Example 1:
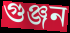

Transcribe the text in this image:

গুঞ্জন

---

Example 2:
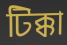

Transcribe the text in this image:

টিক্কা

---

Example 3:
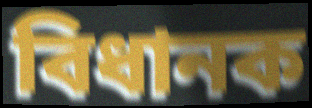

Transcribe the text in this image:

বিধানক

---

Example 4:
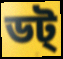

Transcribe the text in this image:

ডট্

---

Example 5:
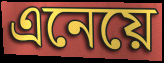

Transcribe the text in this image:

এনেয়ে